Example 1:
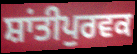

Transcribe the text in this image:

ਸ਼ਾਂਤੀਪੁਰਵਕ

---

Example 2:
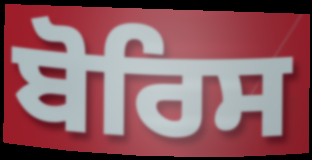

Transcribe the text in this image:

ਬੋਰਿਸ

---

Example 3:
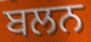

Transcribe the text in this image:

ਬਲਨ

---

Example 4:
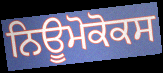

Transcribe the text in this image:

ਨਿਊਮੋਕੋਕਸ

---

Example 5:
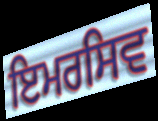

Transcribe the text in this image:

ਇਮਰਸਿਵ